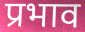
प्रभाव